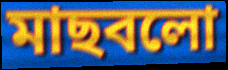
মাছবলো